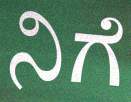
ನಿಗೆ